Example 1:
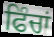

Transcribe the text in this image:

ਫਿੰਚਾਂ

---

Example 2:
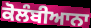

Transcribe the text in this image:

ਕੋਲੰਬੀਆਨਾ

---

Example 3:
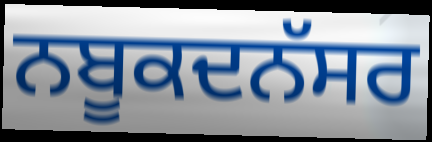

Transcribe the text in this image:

ਨਬੂਕਦਨੱਸਰ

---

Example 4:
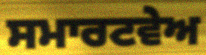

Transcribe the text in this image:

ਸਮਾਰਟਵੇਅ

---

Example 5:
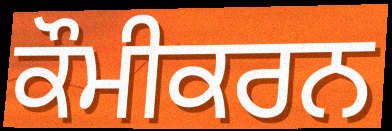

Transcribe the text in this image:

ਕੌਮੀਕਰਨ